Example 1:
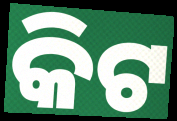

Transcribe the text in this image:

କିଟ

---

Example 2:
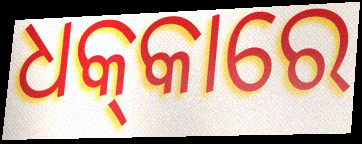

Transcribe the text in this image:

ଧକ୍‍କାରେ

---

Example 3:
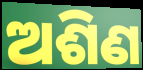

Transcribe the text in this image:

ଅଶିଣ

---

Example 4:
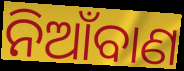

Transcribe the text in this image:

ନିଆଁବାଣ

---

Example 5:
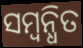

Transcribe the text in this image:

ସମ୍ଵନ୍ଧିତ